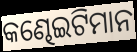
କଣ୍ଢେଇଟିମାନ